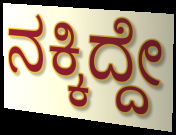
ನಕ್ಕಿದ್ದೇ